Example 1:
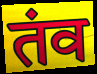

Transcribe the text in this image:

तंव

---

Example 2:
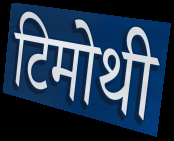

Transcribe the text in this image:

टिमोथी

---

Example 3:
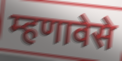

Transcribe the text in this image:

म्हणावेसे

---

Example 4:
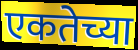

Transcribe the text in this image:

एकतेच्या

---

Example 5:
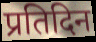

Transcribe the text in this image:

प्रतिदिन